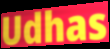
Udhas